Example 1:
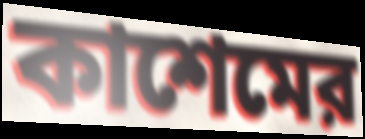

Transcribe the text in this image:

কাশেমের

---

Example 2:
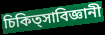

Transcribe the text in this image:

চিকিত্সাবিজ্ঞানী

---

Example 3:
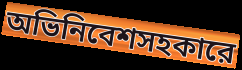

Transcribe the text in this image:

অভিনিবেশসহকারে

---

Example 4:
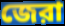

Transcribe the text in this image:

জেরা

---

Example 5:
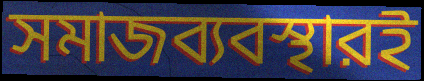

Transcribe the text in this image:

সমাজব্যবস্থারই